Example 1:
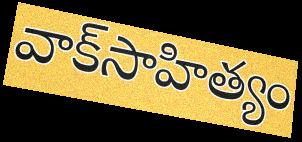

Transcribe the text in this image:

వాక్‌సాహిత్యం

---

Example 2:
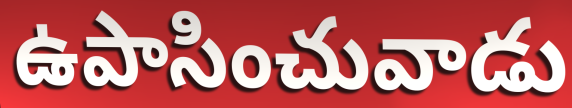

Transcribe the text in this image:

ఉపాసించువాడు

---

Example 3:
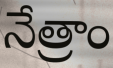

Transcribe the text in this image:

నేత్రాం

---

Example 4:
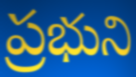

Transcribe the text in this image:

ప్రభుని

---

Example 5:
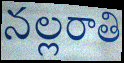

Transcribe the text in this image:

నల్లరాతి